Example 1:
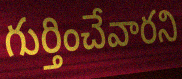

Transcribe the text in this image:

గుర్తించేవారని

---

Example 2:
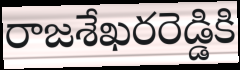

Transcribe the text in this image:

రాజశేఖరరెడ్డికి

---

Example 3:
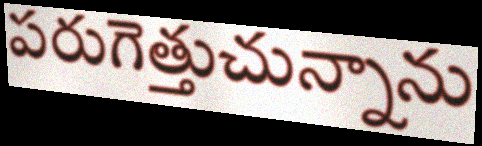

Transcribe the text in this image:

పరుగెత్తుచున్నాను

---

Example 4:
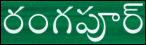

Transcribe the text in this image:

రంగపూర్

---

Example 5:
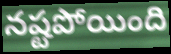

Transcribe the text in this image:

నష్టపోయింది